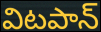
విటపాన్